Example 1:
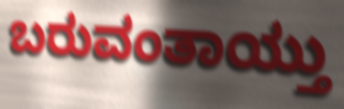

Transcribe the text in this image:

ಬರುವಂತಾಯ್ತು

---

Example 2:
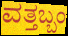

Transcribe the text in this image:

ವತ್ತಬ್ಬಂ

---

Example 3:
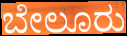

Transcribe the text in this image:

ಬೇಲೂರು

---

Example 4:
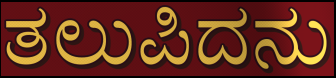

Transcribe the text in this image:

ತಲುಪಿದನು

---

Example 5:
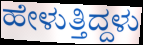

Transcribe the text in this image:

ಹೇಳುತ್ತಿದ್ದಳು